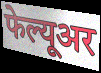
फेल्यूअर